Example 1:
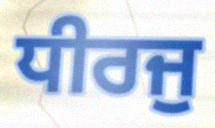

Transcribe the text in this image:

ਧੀਰਜੁ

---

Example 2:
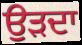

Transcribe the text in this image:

ਉੜਦਾ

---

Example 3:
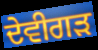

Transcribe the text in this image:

ਦੇਵੀਗੜ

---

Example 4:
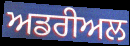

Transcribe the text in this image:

ਅਡਰੀਅਲ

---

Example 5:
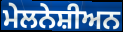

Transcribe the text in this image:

ਮੇਲਨੇਸ਼ੀਅਨ